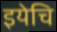
इयेचि